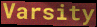
Varsity